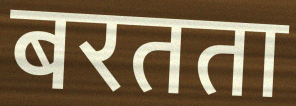
बरतता